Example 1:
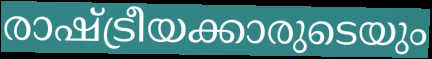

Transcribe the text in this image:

രാഷ്ട്രീയക്കാരുടെയും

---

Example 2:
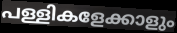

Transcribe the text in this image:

പള്ളികളേക്കാളും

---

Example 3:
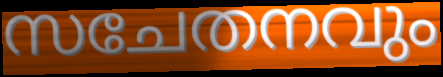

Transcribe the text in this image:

സചേതനവും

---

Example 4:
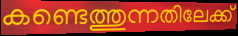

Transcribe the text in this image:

കണ്ടെത്തുന്നതിലേക്ക്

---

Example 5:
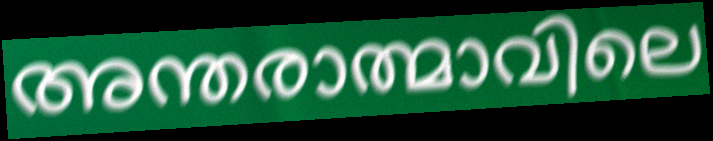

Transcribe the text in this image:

അന്തരാത്മാവിലെ